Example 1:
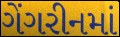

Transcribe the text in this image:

ગેંગરીનમાં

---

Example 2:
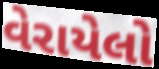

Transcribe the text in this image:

વેરાયેલો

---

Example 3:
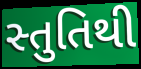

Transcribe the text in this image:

સ્તુતિથી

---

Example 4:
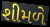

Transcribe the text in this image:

શીમળે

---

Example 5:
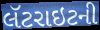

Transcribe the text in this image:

લૅટરાઇટની